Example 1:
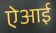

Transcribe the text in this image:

ऐआई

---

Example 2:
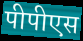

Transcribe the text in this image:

पीपीएस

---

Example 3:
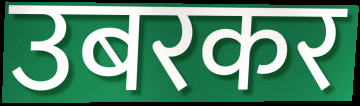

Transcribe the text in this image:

उबरकर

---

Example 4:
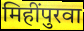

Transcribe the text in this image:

मिहींपुरवा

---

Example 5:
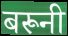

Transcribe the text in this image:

बरूनी